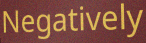
Negatively